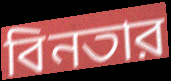
বিনতার